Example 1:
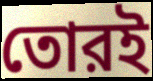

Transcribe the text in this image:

তোরই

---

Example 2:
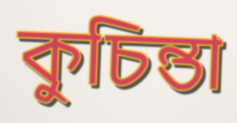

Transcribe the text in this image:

কুচিন্তা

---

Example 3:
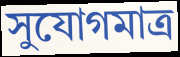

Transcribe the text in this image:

সুযোগমাত্র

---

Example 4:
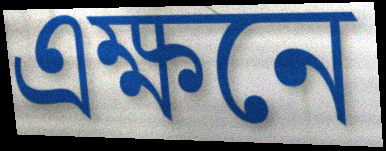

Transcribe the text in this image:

এক্ষনে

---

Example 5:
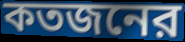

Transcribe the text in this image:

কতজনের